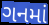
ગનમાં